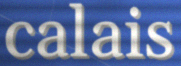
calais